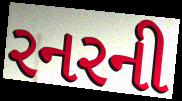
રનરની